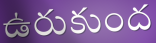
ఉరుకుంద